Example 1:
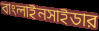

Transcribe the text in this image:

বাংলাইনসাইডার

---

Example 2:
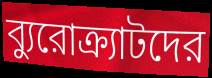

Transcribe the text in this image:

ব্যুরোক্র্যাটদের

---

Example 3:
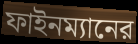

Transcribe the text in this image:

ফাইনম্যানের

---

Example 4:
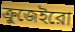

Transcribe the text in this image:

ক্রুজেইরো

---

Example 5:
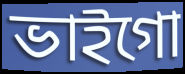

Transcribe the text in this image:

ভাইগো